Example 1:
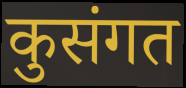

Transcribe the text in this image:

कुसंगत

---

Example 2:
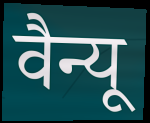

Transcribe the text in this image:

वैन्यू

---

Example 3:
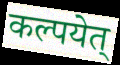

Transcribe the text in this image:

कल्पयेत्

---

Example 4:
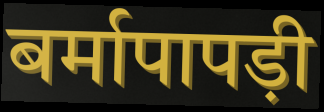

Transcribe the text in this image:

बर्मापापड़ी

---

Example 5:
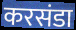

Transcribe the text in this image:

करसंडा